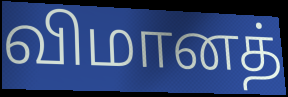
விமானத்